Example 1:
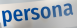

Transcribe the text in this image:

persona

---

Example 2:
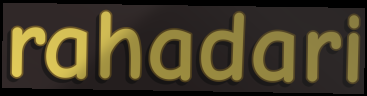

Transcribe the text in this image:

rahadari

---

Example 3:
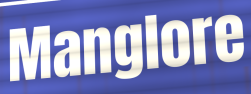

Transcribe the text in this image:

Manglore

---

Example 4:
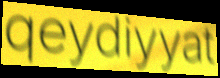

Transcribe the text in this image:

qeydiyyat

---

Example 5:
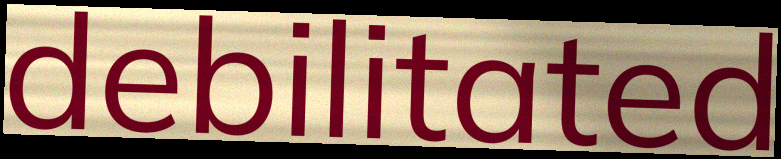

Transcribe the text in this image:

debilitated